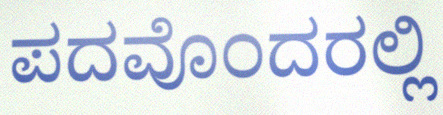
ಪದವೊಂದರಲ್ಲಿ